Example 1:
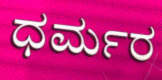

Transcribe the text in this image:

ಧರ್ಮರ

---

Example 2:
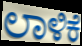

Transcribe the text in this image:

ಲಾಳಿಕೆ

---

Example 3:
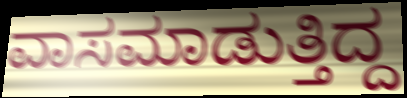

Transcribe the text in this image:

ವಾಸಮಾಡುತ್ತಿದ್ದ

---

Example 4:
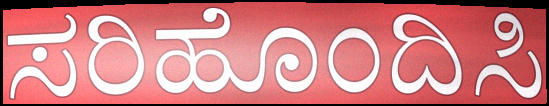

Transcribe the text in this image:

ಸರಿಹೊಂದಿಸಿ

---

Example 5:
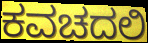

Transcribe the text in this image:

ಕವಚದಲಿ